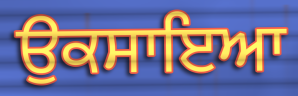
ਉਕਸਾਇਆ